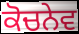
ਕੋਚਨੇਵ